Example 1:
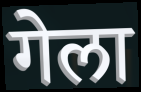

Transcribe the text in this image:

गेला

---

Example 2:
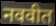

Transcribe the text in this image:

नववीत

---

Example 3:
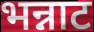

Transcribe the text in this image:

भन्नाट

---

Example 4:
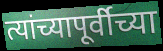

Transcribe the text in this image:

त्यांच्यापूर्वीच्या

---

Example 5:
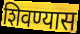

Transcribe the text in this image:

शिवण्यास